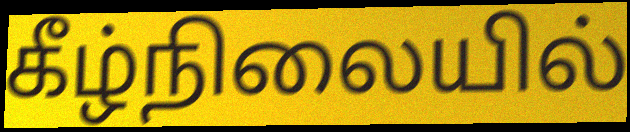
கீழ்நிலையில்